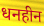
धनहीन